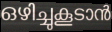
ഒഴിച്ചുകൂടാൻ